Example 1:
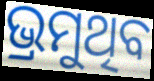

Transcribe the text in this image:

ଭ୍ରମୁଥିବ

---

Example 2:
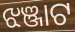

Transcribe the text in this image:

ଝଞ୍ଜାଟ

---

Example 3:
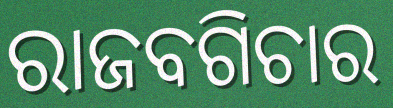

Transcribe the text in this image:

ରାଜବଗିଚାର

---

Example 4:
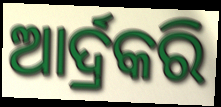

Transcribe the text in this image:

ଆର୍ଦ୍ରକରି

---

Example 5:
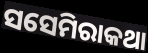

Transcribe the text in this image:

ସସେମିରାକଥା